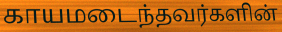
காயமடைந்தவர்களின்